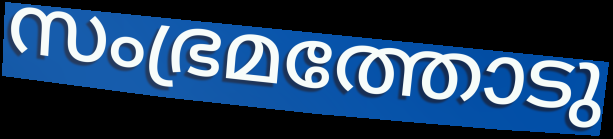
സംഭ്രമത്തോടു